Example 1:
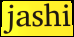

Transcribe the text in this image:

jashi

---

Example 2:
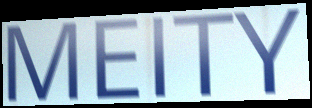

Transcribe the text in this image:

MEITY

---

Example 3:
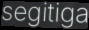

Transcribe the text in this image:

segitiga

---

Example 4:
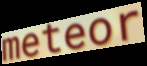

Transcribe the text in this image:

meteor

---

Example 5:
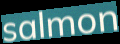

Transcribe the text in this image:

salmon